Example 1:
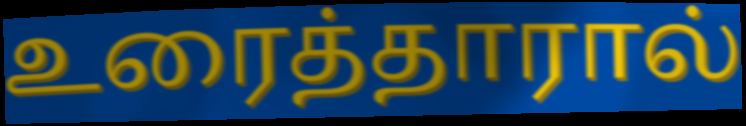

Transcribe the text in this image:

உரைத்தாரால்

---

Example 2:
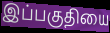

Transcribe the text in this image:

இப்பகுதியை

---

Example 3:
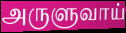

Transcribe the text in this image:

அருளுவாய்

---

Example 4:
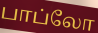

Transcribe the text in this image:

பாப்லோ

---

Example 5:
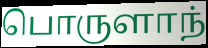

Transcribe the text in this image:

பொருளாந்